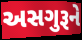
અસગુરૂને